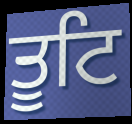
ਤੂਟਿ